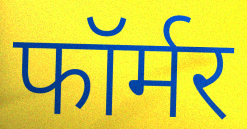
फॉर्मर